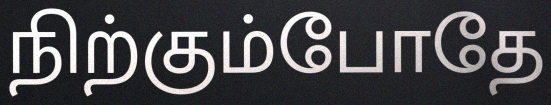
நிற்கும்போதே